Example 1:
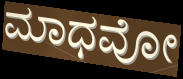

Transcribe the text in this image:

ಮಾಧವೋ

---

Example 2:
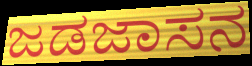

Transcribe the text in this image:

ಜಡಜಾಸನ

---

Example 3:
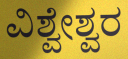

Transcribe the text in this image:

ವಿಶ್ವೇಶ್ವರ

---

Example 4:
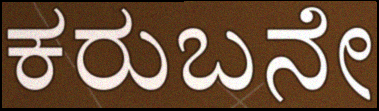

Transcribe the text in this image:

ಕರುಬನೇ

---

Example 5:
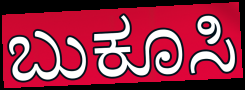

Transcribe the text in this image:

ಬುಕೂಸಿ